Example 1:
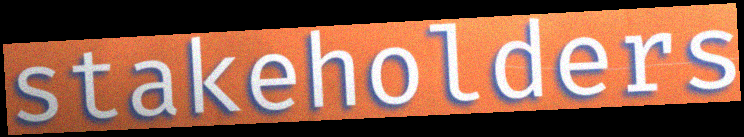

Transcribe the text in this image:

stakeholders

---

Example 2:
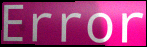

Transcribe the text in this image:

Error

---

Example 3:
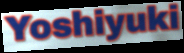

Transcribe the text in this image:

Yoshiyuki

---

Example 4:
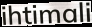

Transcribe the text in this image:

ihtimali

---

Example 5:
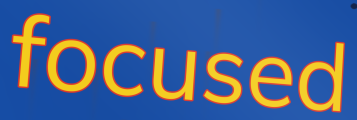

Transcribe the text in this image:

focused